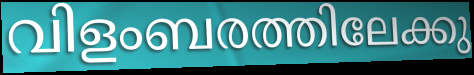
വിളംബരത്തിലേക്കു